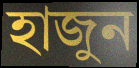
হাজুন